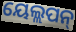
ୟେଲ୍ଲପନ୍